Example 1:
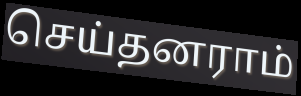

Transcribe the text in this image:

செய்தனராம்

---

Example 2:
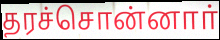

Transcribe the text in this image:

தரச்சொன்னார்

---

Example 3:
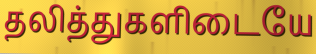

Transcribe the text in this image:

தலித்துகளிடையே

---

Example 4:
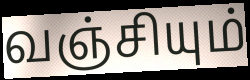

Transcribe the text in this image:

வஞ்சியும்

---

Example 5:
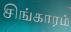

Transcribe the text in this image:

சிங்காரம்